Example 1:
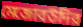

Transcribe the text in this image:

মেজোবউদির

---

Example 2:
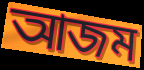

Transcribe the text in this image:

আজম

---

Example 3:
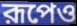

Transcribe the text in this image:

রূপেও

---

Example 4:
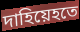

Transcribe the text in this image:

দাহিয়েহতে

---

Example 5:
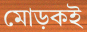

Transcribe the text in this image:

মোড়কই